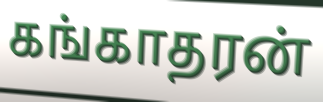
கங்காதரன்